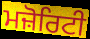
ਮਜ਼ੋਰਿਟੀ